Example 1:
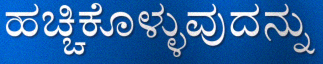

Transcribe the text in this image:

ಹಚ್ಚಿಕೊಳ್ಳುವುದನ್ನು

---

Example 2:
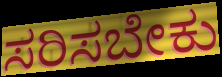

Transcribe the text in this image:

ಸರಿಸಬೇಕು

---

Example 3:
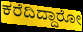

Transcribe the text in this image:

ಕರೆದಿದ್ದಾರೋ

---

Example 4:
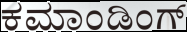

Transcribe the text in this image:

ಕಮಾಂಡಿಂಗ್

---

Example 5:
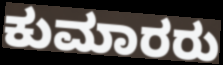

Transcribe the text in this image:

ಕುಮಾರರು